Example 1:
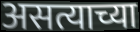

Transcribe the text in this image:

असत्याच्या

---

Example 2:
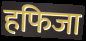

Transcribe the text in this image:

हफिजा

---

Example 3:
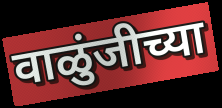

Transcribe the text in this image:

वाळुंजीच्या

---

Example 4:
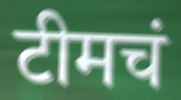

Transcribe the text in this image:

टीमचं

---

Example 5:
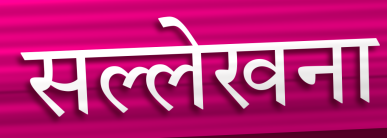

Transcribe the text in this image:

सल्लेखना